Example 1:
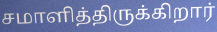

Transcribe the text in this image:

சமாளித்திருக்கிறார்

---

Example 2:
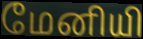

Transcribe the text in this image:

மேனியி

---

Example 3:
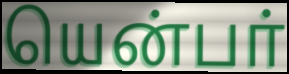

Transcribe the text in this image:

யென்பர்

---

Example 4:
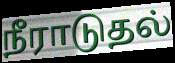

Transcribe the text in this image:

நீராடுதல்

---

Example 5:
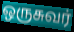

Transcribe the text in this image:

ஒருசுவர்